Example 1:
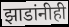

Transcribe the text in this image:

झाडांनीही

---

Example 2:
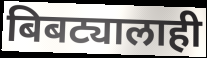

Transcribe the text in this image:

बिबट्यालाही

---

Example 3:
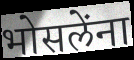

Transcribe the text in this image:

भोसलेंना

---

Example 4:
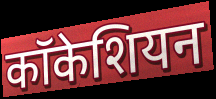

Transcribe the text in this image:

कॉकेशियन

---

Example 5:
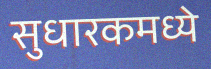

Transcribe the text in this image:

सुधारकमध्ये